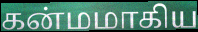
கன்மமாகிய